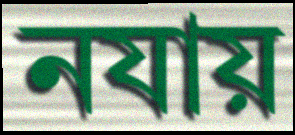
নযায়